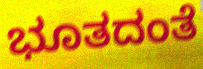
ಭೂತದಂತೆ